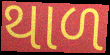
થાળ